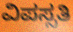
ವಿಪಸ್ಸತಿ